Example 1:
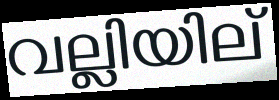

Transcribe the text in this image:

വല്ലിയില്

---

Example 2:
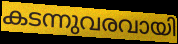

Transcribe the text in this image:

കടന്നുവരവായി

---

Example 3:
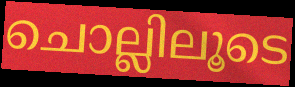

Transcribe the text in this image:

ചൊല്ലിലൂടെ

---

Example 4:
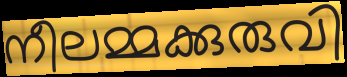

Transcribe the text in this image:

നീലമ്മക്കുരുവി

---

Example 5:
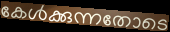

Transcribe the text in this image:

കേൾക്കുന്നതോടെ